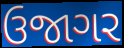
ઉજાગર